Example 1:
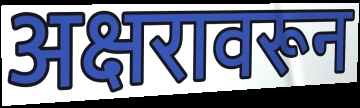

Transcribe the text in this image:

अक्षरावरून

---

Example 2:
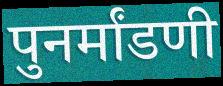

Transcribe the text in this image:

पुनर्मांडणी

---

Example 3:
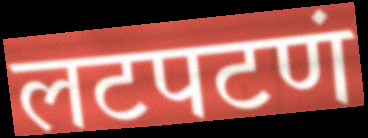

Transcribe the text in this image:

लटपटणं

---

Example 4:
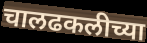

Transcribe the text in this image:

चालढकलीच्या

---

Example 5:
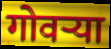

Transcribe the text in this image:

गोवर्‍या